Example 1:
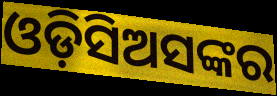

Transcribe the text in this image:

ଓଡ଼ିସିଅସଙ୍କର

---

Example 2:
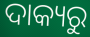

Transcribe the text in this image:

ଦାକ୍ୟରୁ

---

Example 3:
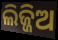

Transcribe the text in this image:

ଲିଜ୍ଜିଅ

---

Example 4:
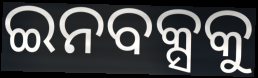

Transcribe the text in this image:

ଇନବକ୍ସକୁ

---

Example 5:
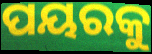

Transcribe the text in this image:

ପୟରକୁ